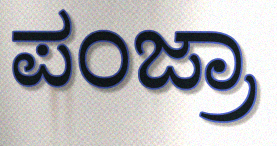
ಪಂಜ್ರಾ